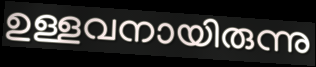
ഉള്ളവനായിരുന്നു